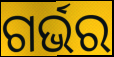
ଗର୍ଭର